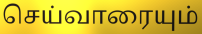
செய்வாரையும்